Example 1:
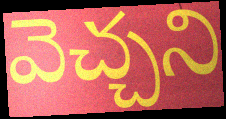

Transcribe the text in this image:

వెచ్చని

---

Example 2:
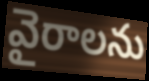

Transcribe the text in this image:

వైరాలను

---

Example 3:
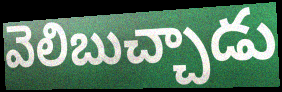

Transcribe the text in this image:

వెలిబుచ్చాడు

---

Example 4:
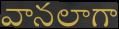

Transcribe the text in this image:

వానలాగా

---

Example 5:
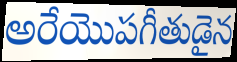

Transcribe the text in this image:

అరేయొపగీతుడైన